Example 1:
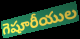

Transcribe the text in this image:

గెషూరీయుల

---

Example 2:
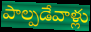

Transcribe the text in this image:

పాల్పడేవాళ్లు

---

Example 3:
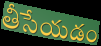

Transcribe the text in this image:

తీసేయడం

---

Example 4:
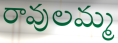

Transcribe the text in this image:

రావులమ్మ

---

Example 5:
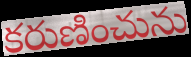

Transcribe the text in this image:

కరుణించును